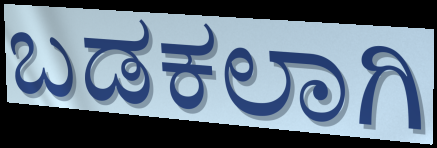
ಬಡಕಲಾಗಿ